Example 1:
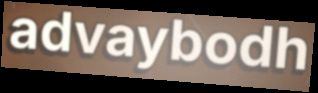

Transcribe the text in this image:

advaybodh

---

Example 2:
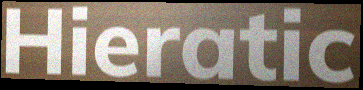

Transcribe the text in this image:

Hieratic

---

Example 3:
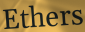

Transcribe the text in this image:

Ethers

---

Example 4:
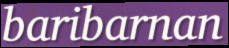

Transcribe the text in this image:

baribarnan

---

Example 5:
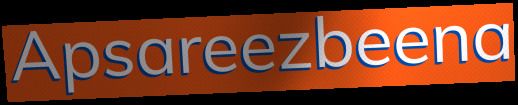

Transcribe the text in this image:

Apsareezbeena